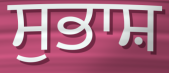
ਸੁਭਾਸ਼